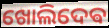
ଖୋଲିଦେଵ